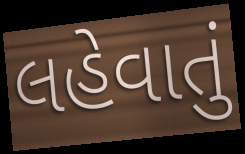
લહેવાતું